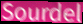
Sourdel